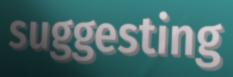
suggesting